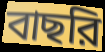
বাছরি